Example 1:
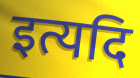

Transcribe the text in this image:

इत्यदि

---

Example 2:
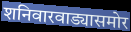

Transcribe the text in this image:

शनिवारवाड्यासमोर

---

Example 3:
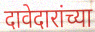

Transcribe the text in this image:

दावेदारांच्या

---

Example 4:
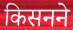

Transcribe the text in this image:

किसनने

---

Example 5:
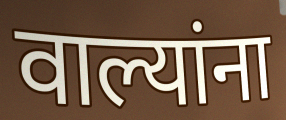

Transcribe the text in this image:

वाल्यांना